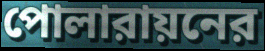
পোলারায়নের